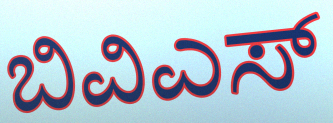
ಬಿವಿಎಸ್